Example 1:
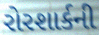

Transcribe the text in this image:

રોરશાર્કની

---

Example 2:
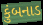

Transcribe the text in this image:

કુંબનાડ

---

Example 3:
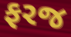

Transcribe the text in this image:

ફરજ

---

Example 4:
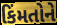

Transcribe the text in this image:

કિંમતોને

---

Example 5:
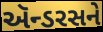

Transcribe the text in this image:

ઍન્ડરસને